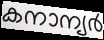
കനാന്യർ